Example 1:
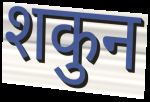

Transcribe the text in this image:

शकुन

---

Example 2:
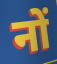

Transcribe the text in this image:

नों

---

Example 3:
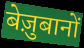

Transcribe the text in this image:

बेज़ुबानों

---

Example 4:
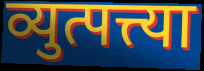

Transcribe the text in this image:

व्युत्पत्त्या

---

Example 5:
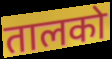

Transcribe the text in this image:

तालको